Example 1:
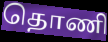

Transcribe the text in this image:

தொணி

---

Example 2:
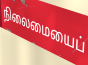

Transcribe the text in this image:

நிலைமையைப்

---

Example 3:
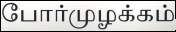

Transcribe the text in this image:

போர்முழக்கம்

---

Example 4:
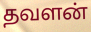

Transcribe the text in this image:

தவளன்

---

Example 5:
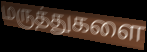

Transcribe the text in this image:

மருத்துகளை